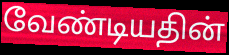
வேண்டியதின்